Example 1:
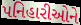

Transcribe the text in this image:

પનિહારીઓને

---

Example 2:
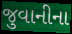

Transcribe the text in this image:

જુવાનીના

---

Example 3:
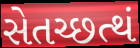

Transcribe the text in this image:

સેતચ્છત્થં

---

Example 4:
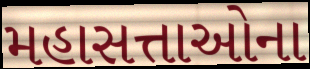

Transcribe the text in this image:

મહાસત્તાઓના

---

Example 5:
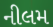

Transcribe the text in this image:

નીલમ